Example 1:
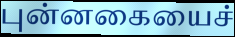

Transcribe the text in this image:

புன்னகையைச்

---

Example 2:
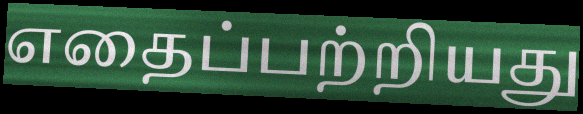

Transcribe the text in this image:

எதைப்பற்றியது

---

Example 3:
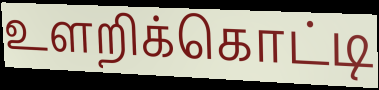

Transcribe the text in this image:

உளறிக்கொட்டி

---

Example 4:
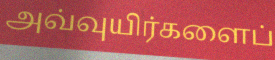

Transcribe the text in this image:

அவ்வுயிர்களைப்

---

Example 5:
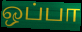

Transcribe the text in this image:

ஒப்பா